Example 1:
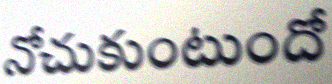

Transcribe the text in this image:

నోచుకుంటుందో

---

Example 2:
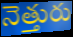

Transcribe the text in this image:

నెత్తురు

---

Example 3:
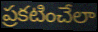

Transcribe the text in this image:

ప్రకటించేలా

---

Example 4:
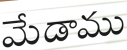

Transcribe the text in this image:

మేడాము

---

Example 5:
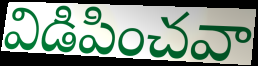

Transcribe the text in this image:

విడిపించవా